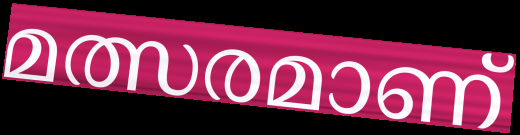
മത്സരമാണ്